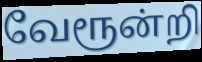
வேரூன்றி